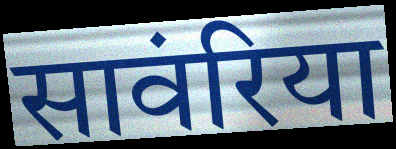
सावंरिया